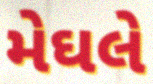
મેઘલે